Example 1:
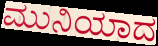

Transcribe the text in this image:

ಮುನಿಯಾದ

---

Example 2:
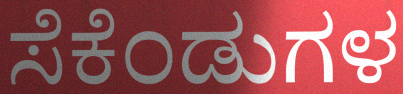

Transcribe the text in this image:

ಸೆಕೆಂಡುಗಳ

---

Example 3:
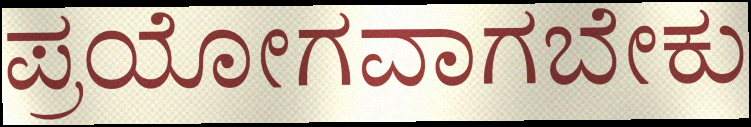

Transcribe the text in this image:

ಪ್ರಯೋಗವಾಗಬೇಕು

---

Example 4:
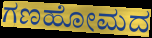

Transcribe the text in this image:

ಗಣಹೋಮದ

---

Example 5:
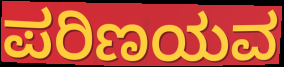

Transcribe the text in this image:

ಪರಿಣಯವ